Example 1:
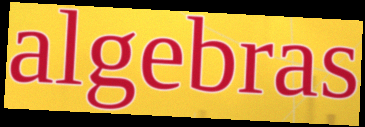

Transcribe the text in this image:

algebras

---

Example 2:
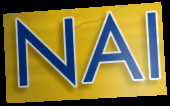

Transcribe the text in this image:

NAI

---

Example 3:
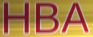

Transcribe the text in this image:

HBA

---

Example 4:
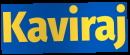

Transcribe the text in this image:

Kaviraj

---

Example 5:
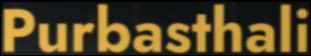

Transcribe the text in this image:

Purbasthali